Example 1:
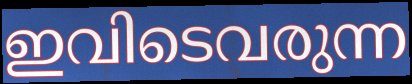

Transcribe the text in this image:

ഇവിടെവരുന്ന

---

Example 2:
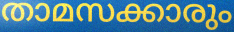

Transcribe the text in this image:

താമസക്കാരും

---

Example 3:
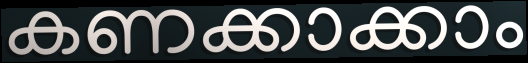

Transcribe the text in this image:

കണക്കാക്കാം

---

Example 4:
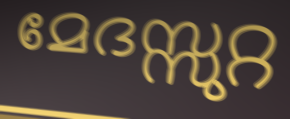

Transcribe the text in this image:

മേദസ്സുറ്റ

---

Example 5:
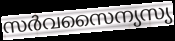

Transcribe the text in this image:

സർവസൈന്യസ്യ